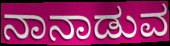
ನಾನಾಡುವ